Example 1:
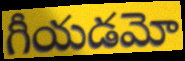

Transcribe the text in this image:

గీయడమో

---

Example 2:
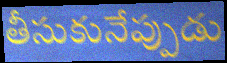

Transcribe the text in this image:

తీసుకునేప్పుడు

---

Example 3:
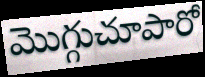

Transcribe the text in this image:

మొగ్గుచూపారో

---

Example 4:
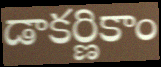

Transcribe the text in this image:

డాకర్ణికాం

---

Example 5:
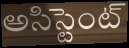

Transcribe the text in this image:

అసిస్టెంట్